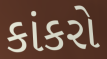
કાંકરો